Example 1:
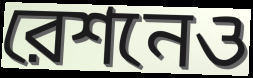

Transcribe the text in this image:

রেশনেও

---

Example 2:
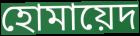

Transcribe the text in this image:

হোমায়েদ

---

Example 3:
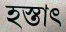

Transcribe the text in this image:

হস্তাৎ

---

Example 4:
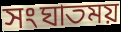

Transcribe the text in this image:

সংঘাতময়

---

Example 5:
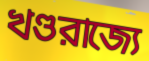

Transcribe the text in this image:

খণ্ডরাজ্যে